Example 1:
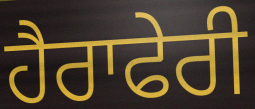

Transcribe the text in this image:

ਹੈਰਾਫੇਰੀ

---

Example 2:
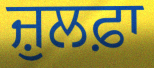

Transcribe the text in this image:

ਜ਼ੁਲਫ਼ਾ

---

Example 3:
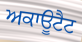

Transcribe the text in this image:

ਅਕਾਊਟੈਟ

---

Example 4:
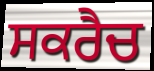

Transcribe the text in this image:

ਸਕਰੈਚ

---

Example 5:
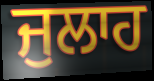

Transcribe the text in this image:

ਜੁਲਾਹ